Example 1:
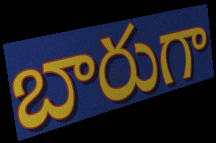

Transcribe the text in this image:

బారుగా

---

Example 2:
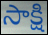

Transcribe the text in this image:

సాక్షి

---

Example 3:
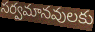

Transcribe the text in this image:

సర్వమానవులకు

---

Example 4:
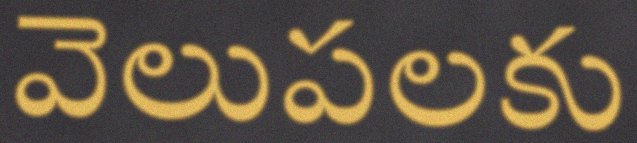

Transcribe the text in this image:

వెలుపలకు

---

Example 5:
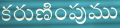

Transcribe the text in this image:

కరుణింపుము